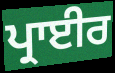
ਪ੍ਰਾਈਰ